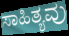
ಸಾಹಿತ್ಯವು